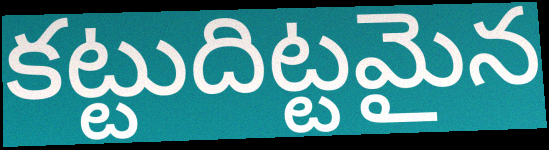
కట్టుదిట్టమైన